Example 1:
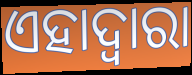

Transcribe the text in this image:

ଏହାଦ୍ୱାରା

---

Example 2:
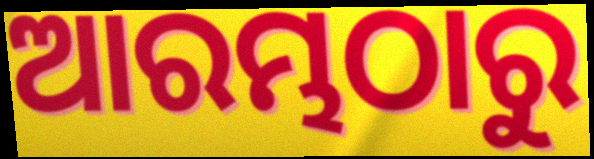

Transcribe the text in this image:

ଆରମ୍ଭଠାରୁ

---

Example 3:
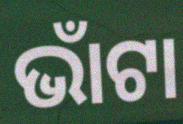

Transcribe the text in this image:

ଭାଁଟା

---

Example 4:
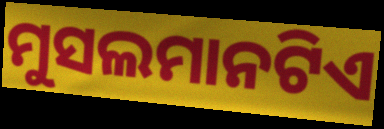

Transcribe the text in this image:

ମୁସଲମାନଟିଏ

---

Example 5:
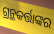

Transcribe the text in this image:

ଗ୍ରନ୍ଥକର୍ତ୍ତାଙ୍କର